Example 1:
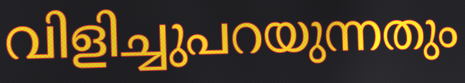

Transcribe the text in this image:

വിളിച്ചുപറയുന്നതും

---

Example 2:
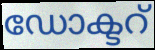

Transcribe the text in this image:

ഡോക്ടറ്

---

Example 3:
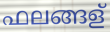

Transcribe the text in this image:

ഫലങ്ങള്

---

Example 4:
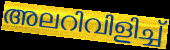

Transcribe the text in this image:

അലറിവിളിച്ച്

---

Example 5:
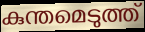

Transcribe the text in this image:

കുന്തമെടുത്ത്